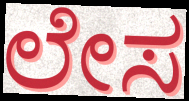
ಲೇಸ